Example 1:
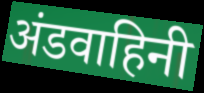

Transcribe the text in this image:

अंडवाहिनी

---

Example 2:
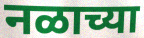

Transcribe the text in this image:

नळाच्या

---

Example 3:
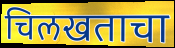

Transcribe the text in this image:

चिलखताचा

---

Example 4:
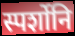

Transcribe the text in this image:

स्पर्शोनि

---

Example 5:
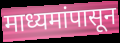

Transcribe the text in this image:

माध्यमांपासून